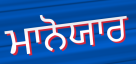
ਮਾਨੋਯਾਰ